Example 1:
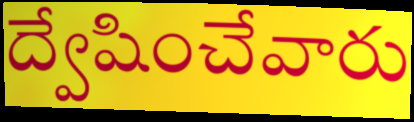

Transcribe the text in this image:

ద్వేషించేవారు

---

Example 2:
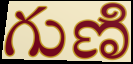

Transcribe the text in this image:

గుణి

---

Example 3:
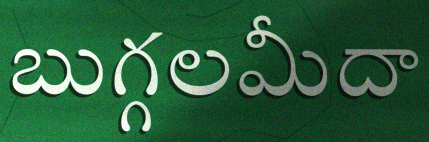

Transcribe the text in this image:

బుగ్గలమీదా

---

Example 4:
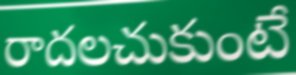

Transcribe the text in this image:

రాదలచుకుంటే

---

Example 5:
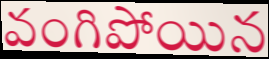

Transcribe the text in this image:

వంగిపోయిన